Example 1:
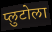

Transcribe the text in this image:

प्लुटोला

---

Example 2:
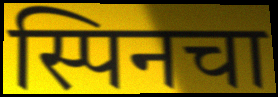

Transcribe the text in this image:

स्पिनचा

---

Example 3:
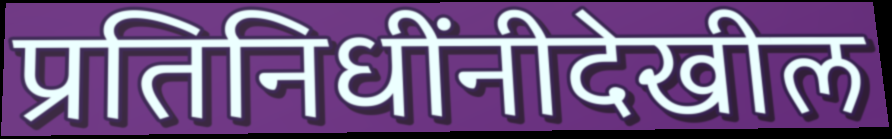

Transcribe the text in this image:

प्रतिनिधींनीदेखील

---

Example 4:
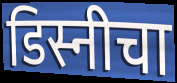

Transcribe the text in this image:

डिस्नीचा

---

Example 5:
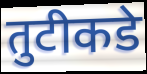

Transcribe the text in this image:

तुटीकडे